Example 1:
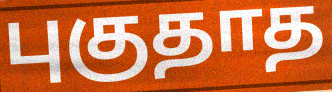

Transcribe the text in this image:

புகுதாத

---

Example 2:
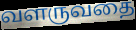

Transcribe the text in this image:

வளருவதை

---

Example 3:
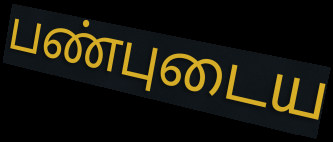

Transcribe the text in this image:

பண்புடைய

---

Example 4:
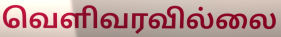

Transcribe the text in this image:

வெளிவரவில்லை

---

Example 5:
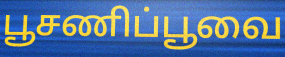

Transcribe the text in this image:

பூசணிப்பூவை